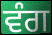
ਵੰਗ